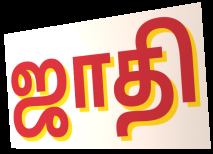
ஜாதி